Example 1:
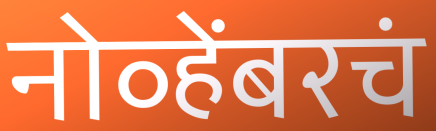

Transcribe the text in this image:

नोव्हेंबरचं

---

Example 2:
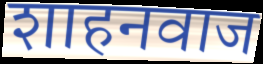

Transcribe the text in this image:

शाहनवाज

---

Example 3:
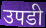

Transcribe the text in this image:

उपडी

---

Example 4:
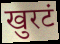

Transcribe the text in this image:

खुरटं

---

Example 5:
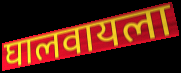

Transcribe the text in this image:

घालवायला